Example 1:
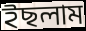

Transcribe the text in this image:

ইছলাম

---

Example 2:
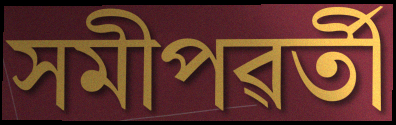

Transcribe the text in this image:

সমীপৱৰ্তী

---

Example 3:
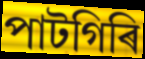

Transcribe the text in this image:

পাটগিৰি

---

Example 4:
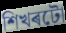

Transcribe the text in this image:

শিখৰটো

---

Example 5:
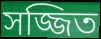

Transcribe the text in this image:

সজ্জিত